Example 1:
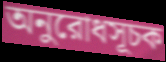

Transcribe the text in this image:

অনুরোধসূচক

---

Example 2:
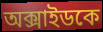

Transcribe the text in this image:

অক্সাইডকে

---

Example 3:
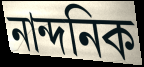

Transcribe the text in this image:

নান্দনিক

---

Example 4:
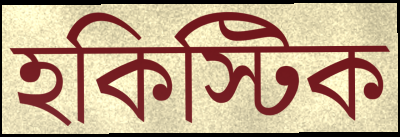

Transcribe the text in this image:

হকিস্টিক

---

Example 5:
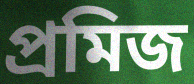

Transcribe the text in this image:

প্রমিজ